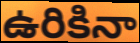
ఉరికినా